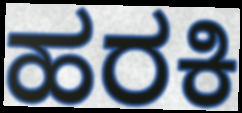
ಹರಕಿ